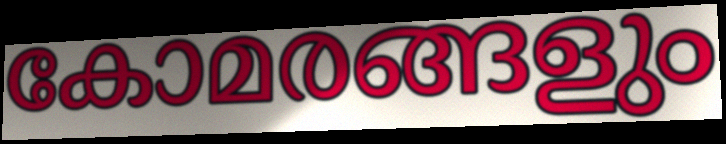
കോമരങ്ങളും